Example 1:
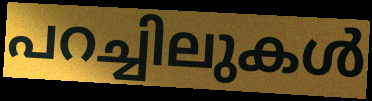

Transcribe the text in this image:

പറച്ചിലുകൾ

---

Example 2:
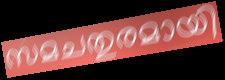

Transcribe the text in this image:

സമചതുരമായി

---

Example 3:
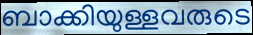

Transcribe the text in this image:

ബാക്കിയുള്ളവരുടെ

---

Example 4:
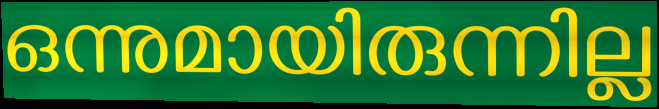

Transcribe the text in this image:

ഒന്നുമായിരുന്നില്ല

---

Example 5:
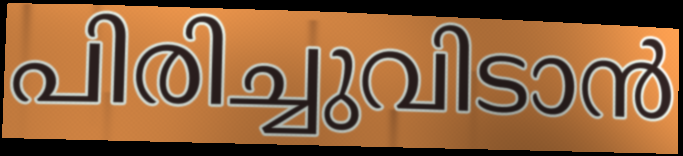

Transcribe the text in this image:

പിരിച്ചുവിടാൻ